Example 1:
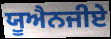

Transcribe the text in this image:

ਯੂਐਨਜੀਏ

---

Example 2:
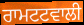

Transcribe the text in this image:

ਰਾਮਟਟਵਾਲੀ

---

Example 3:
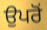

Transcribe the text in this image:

ਉਪਰੋਂ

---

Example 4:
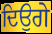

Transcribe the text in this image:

ਦਿਉਗੇ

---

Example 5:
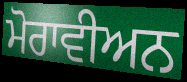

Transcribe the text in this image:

ਮੋਰਾਵੀਅਨ